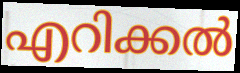
എറിക്കൽ